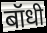
बॉधी